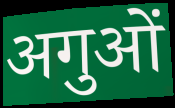
अगुओं